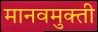
मानवमुक्ती